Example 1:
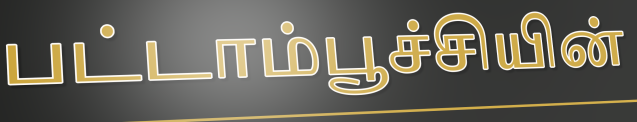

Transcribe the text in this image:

பட்டாம்பூச்சியின்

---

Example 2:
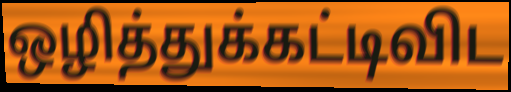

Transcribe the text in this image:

ஒழித்துக்கட்டிவிட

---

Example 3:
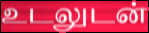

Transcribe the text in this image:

உடலுடன்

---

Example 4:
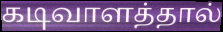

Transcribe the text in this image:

கடிவாளத்தால்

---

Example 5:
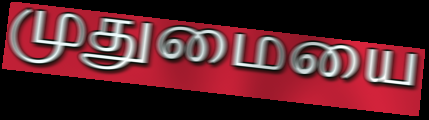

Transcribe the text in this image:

முதுமையை